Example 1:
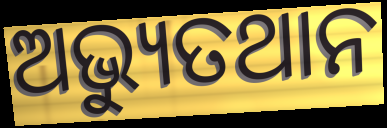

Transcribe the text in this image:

ଅଭ୍ୟୁତଥାନ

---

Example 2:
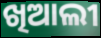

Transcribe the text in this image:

ଖିଆଲୀ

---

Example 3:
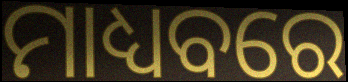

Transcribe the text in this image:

ମାଧ୍ୟବରେ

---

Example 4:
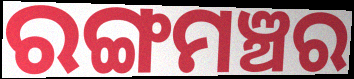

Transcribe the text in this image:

ରଙ୍ଗମଞ୍ଚର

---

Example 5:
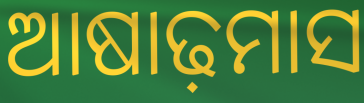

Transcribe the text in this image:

ଆଷାଢ଼ମାସ